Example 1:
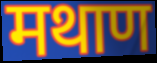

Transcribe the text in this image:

मथाण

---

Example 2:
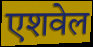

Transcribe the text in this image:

एशवेल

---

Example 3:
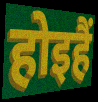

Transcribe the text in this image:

होइहैं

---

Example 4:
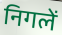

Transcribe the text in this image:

निगलें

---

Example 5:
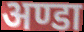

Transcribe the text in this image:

अण्डा